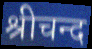
श्रीचन्द